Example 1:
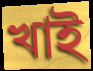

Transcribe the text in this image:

খাই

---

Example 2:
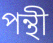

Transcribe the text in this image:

পন্থী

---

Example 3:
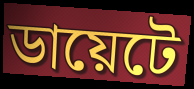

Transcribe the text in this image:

ডায়েটে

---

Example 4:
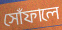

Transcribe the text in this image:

সোঁফালে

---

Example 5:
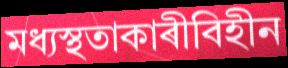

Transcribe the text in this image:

মধ্যস্থতাকাৰীবিহীন